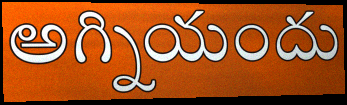
అగ్నియందు